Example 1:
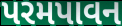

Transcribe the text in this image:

પરમપાવન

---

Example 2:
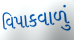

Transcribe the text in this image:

વિપાકવાળું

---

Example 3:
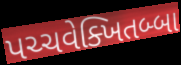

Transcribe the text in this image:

પચ્ચવેક્ખિતબ્બા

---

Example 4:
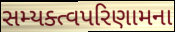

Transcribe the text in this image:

સમ્યક્ત્વપરિણામના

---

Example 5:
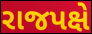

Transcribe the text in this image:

રાજપક્ષે